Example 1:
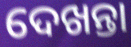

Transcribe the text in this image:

ଦେଖନ୍ତା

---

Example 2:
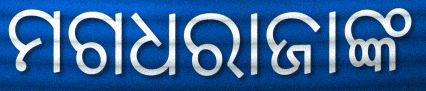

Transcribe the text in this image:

ମଗଧରାଜାଙ୍କ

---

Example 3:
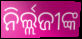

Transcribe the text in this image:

ନିର୍ଲ୍ଲଜୀଙ୍କ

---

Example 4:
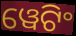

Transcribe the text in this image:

ୱେଟିଂ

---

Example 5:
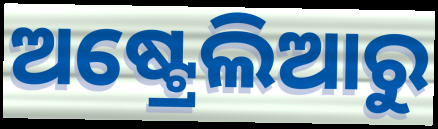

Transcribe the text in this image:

ଅଷ୍ଟ୍ରେଲିଆରୁ